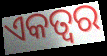
ଏକତ୍ବର